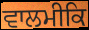
ਵਾਲਮੀਕਿ